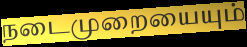
நடைமுறையையும்